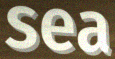
sea